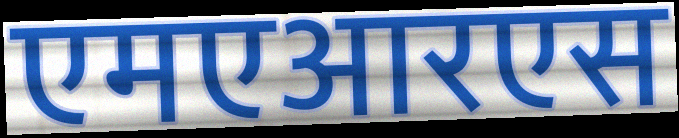
एमएआरएस